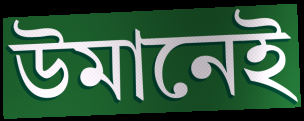
উমানেই